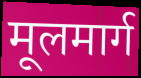
मूलमार्ग